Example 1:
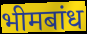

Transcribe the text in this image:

भीमबांध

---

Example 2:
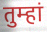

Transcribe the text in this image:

तुम्हां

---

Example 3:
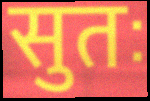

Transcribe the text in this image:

सुतः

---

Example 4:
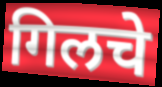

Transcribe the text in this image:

गिलचे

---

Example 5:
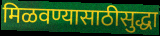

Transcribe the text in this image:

मिळवण्यासाठीसुद्धा